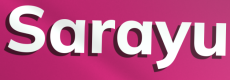
Sarayu